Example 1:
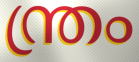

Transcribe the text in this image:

ന്ത്രം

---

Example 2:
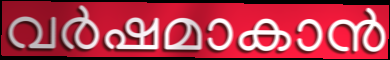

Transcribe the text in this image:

വർഷമാകാൻ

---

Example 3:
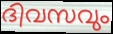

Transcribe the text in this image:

ദിവസവും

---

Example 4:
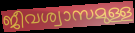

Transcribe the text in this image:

ജീവശ്വാസമുള്ള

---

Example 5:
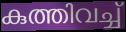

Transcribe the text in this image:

കുത്തിവച്ച്